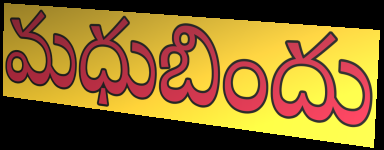
మధుబిందు